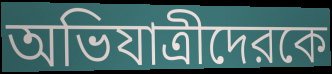
অভিযাত্রীদেরকে